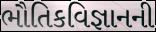
ભૌતિકવિજ્ઞાનની